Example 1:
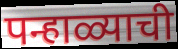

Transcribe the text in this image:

पन्हाळ्याची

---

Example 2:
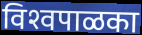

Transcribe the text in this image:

विश्वपाळका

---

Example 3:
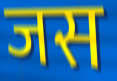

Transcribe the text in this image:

जस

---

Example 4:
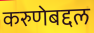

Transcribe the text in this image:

करुणेबद्दल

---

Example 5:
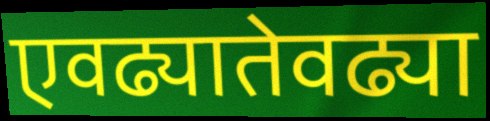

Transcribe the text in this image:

एवढ्यातेवढ्या